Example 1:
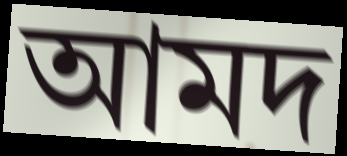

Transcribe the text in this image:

আমদ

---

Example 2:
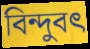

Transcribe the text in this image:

বিন্দুবৎ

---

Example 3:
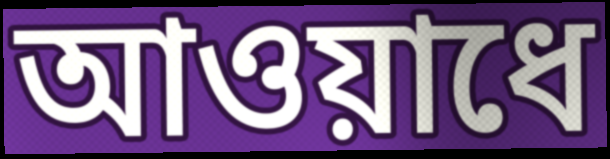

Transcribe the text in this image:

আওয়াধে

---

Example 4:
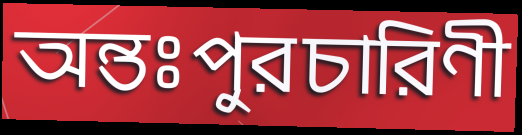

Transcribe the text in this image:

অন্তঃপুরচারিণী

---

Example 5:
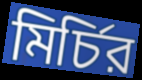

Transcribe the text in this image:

মির্চির